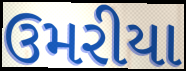
ઉમરીયા